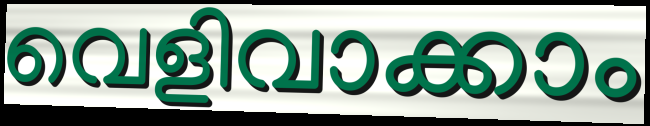
വെളിവാക്കാം